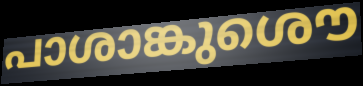
പാശാങ്കുശൌ